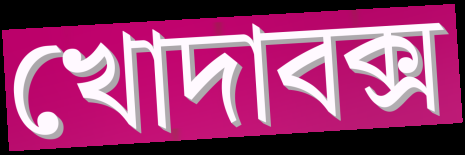
খোদাবক্স